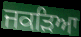
ਜਕੜਿਆ